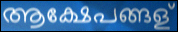
ആക്ഷേപങ്ങള്